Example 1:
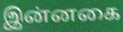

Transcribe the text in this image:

இன்னகை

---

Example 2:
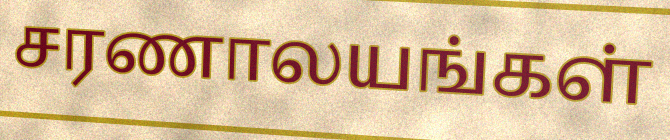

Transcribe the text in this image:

சரணாலயங்கள்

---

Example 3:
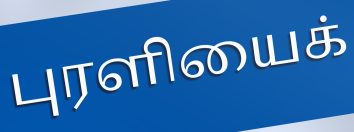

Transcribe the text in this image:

புரளியைக்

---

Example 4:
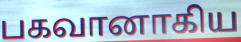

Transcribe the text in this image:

பகவானாகிய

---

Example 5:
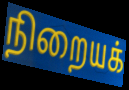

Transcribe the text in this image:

நிறையக்